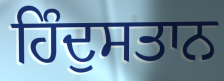
ਹਿੰਦੁਸਤਾਨ